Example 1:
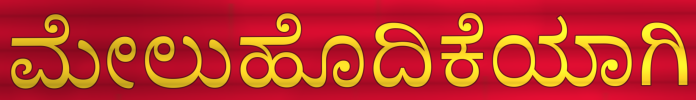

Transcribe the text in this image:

ಮೇಲುಹೊದಿಕೆಯಾಗಿ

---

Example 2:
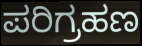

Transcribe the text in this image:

ಪರಿಗ್ರಹಣ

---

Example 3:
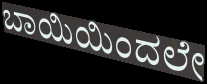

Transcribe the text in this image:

ಬಾಯಿಯಿಂದಲೇ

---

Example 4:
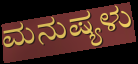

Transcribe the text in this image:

ಮನುಷ್ಯಳು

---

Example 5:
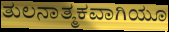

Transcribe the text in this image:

ತುಲನಾತ್ಮಕವಾಗಿಯೂ